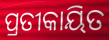
ପ୍ରତୀକାୟିତ